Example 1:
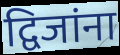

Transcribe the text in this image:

द्विजांना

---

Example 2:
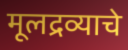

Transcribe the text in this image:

मूलद्रव्याचे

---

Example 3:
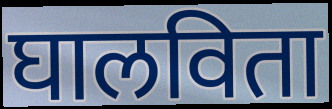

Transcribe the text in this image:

घालविता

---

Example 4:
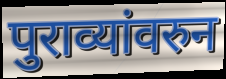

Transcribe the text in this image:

पुराव्यांवरुन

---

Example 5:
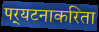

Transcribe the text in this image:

पर्यटनाकरिता